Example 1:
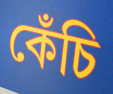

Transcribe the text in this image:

কেঁচি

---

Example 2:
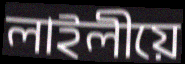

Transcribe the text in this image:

লাইলীয়ে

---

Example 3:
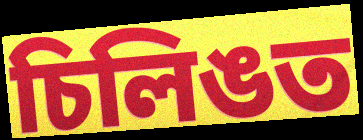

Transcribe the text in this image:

চিলিঙত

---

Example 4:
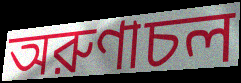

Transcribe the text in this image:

অৰুণাচল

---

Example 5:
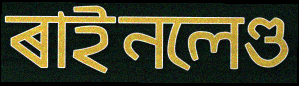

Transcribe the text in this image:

ৰাইনলেণ্ড